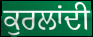
ਕੁਰਲਾਂਦੀ